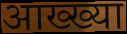
आख्ख्या